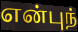
என்புந்